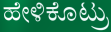
ಹೇಳಿಕೊಟ್ರು